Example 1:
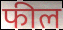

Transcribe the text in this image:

फील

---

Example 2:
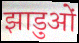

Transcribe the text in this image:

झाड़ुओं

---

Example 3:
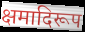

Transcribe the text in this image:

क्षमादिरूप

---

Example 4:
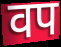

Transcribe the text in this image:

वप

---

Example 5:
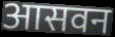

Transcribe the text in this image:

आसवन